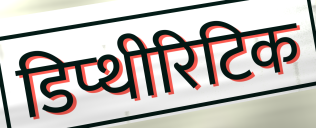
डिप्थीरिटिक